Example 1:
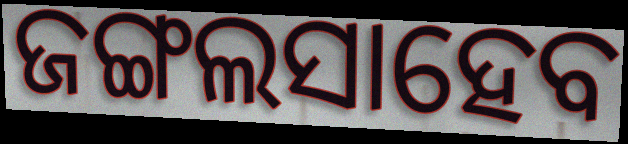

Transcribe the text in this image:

ଜଙ୍ଗଲସାହେବ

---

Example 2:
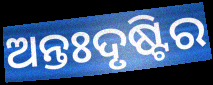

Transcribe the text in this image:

ଅନ୍ତଃଦୃଷ୍ଟିର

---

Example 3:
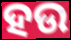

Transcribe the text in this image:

ହଉ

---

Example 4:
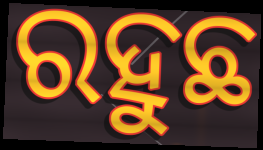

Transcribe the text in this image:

ରହୁଛ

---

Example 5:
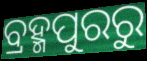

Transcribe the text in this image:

ବ୍ରହ୍ମପୁରରୁ